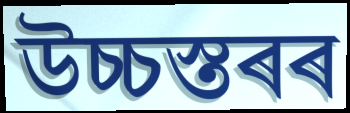
উচ্চস্তৰৰ